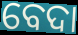
ବେଦା